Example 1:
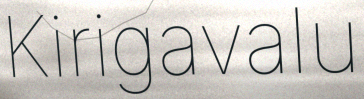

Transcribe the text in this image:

Kirigavalu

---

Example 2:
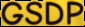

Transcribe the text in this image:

GSDP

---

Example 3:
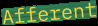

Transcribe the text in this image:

Afferent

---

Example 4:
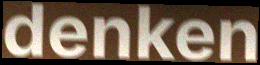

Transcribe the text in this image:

denken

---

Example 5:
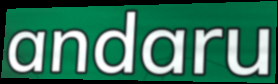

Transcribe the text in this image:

andaru